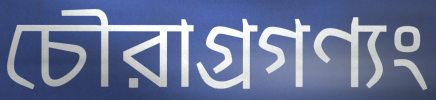
চৌরাগ্রগণ্যং